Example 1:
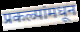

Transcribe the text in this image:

प्रकल्पांमधून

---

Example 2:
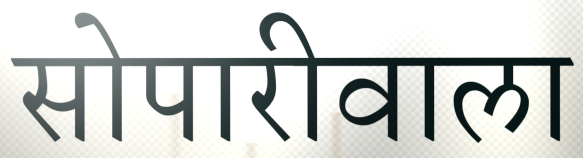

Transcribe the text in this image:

सोपारीवाला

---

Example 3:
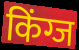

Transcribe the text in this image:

किंग्ज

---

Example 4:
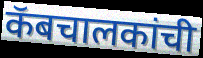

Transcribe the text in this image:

कॅबचालकांची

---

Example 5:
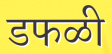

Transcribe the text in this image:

डफळी